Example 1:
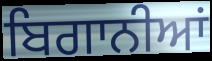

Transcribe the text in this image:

ਬਿਗਾਨੀਆਂ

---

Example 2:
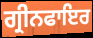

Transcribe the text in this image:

ਗ੍ਰੀਨਫਾਇਰ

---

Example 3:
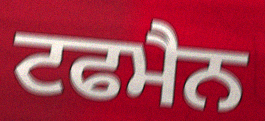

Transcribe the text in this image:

ਟਫਮੈਨ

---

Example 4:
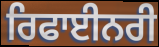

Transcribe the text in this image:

ਰਿਫਾਈਨਰੀ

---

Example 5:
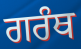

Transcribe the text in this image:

ਗਰੰਥ